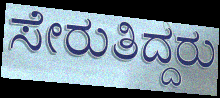
ಸೇರುತಿದ್ದರು